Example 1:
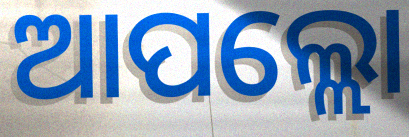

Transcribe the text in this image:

ଆପଲ୍ଲୋ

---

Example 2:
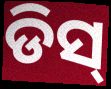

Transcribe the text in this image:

ଡିସ୍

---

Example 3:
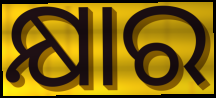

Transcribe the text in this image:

କ୍ଷାର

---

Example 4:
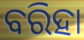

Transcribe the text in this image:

ବରିହା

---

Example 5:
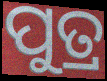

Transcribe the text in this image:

ପୁତ୍ର